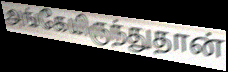
அங்கேயிருந்துதான்